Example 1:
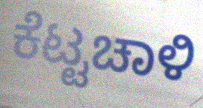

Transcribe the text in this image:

ಕೆಟ್ಟಚಾಳಿ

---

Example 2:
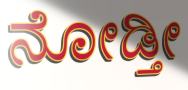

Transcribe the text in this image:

ನೋಡ್ತೀ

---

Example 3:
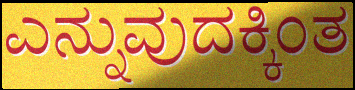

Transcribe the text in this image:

ಎನ್ನುವುದಕ್ಕಿಂತ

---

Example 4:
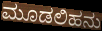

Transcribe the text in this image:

ಮೂಡಲಿಹನು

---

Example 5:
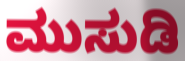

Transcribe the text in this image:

ಮುಸುಡಿ